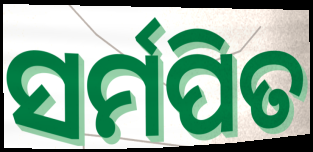
ସର୍ମପିତ